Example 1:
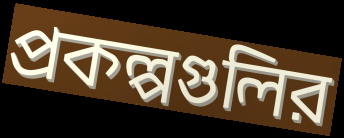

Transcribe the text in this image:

প্রকল্পগুলির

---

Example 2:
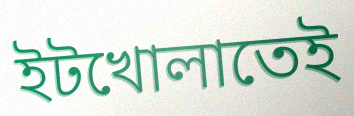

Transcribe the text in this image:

ইটখোলাতেই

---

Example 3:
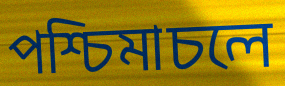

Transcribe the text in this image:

পশ্চিমাচলে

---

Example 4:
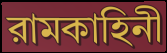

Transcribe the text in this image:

রামকাহিনী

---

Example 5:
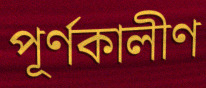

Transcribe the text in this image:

পূর্ণকালীণ